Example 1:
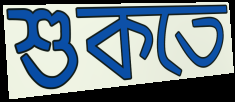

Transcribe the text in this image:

শুকতে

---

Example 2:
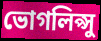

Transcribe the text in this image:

ভোগলিপ্সু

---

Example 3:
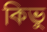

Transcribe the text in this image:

কিভু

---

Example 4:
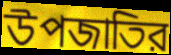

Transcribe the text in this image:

উপজাতির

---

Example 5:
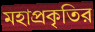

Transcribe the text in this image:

মহাপ্রকৃতির